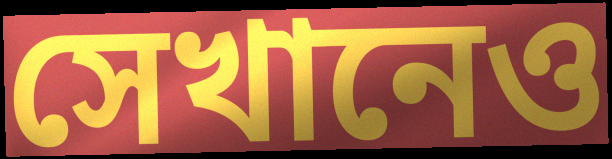
সেখানেও